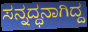
ಸನ್ನದ್ಧನಾಗಿದ್ದ